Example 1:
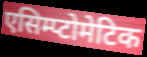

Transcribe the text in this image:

एसिम्प्टोमेटिक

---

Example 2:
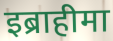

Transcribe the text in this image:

इब्राहीमा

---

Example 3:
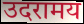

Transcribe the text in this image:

उदरामय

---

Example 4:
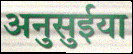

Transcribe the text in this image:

अनुसुईया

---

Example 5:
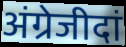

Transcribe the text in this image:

अंग्रेजीदां